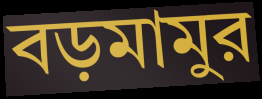
বড়মামুর